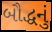
બૌદ્ધનું